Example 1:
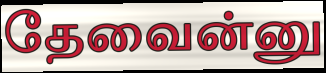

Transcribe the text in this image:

தேவைன்னு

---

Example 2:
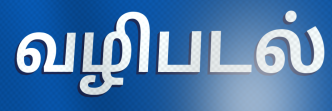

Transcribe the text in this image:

வழிபடல்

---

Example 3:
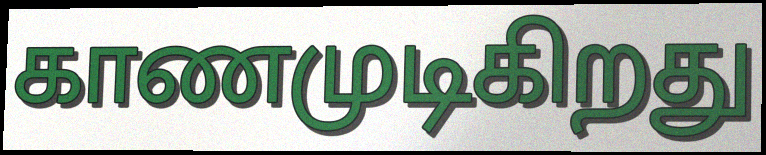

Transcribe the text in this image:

காணமுடிகிறது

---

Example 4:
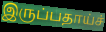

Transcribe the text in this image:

இருப்பதாய்ச்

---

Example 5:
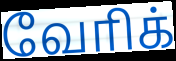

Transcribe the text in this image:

வேரிக்